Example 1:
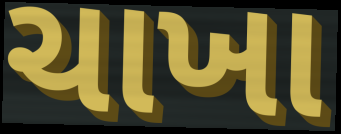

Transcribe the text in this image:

ચાખા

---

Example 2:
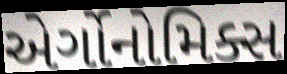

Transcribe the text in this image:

એર્ગોનોમિક્સ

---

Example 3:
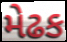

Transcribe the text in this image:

મેઢક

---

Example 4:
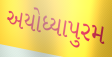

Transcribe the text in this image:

અયોધ્યાપુરમ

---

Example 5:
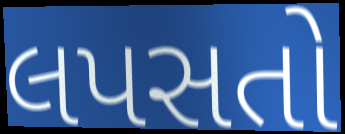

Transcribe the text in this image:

લપસતો